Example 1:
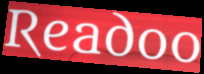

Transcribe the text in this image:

Readoo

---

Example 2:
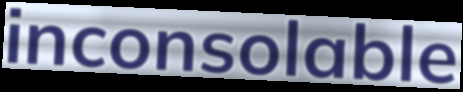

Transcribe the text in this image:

inconsolable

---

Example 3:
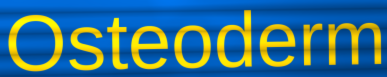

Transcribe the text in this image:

Osteoderm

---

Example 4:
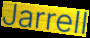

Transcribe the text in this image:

Jarrell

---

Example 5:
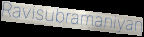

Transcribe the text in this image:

Ravisubramaniyan